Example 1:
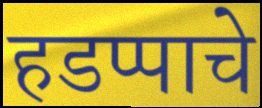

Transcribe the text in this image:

हडप्पाचे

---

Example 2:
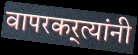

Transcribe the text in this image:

वापरकर्त्यांनी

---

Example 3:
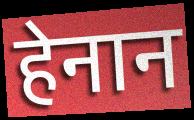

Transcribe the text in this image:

हेनान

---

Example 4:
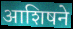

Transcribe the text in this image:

आशिषने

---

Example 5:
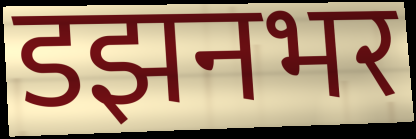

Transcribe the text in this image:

डझनभर